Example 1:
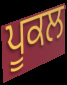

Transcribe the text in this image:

ਪੂਕਲ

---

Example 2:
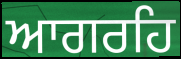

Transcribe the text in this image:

ਆਗਰਹਿ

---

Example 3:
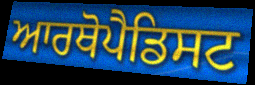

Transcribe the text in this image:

ਆਰਥੋਪੈਡਿਸਟ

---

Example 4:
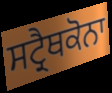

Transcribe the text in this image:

ਸਟ੍ਰੈਥਕੋਨਾ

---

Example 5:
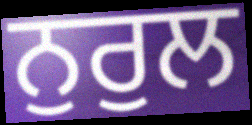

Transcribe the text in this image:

ਨੁਰੁਲ